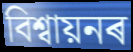
বিশ্বায়নৰ